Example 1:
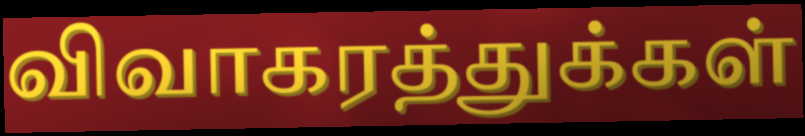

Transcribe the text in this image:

விவாகரத்துக்கள்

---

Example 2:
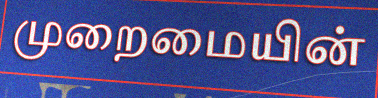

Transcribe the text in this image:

முறைமையின்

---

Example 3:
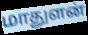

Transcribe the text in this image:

மாதுளன்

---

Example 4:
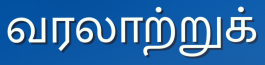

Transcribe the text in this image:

வரலாற்றுக்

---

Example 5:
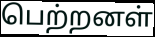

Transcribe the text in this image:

பெற்றனள்